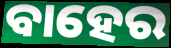
ବାହେର